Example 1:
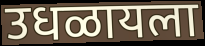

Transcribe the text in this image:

उधळायला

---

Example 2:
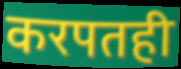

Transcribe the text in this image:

करपतही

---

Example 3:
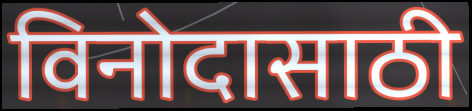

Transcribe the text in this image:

विनोदासाठी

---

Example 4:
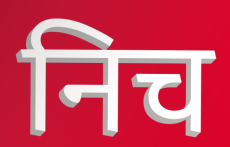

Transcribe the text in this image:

निच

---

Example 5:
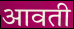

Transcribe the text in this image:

आवती